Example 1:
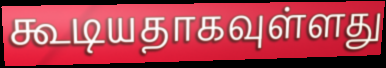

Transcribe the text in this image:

கூடியதாகவுள்ளது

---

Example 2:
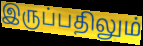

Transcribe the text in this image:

இருப்பதிலும்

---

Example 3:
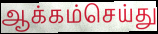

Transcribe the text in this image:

ஆக்கம்செய்து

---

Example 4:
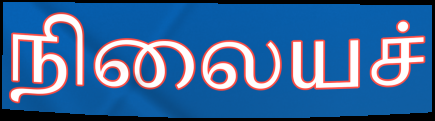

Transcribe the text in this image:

நிலையச்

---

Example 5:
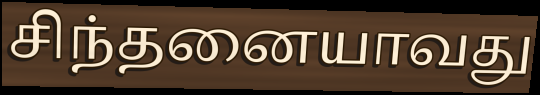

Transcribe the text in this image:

சிந்தனையாவது